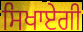
ਸਿਖਾਏਗੀ